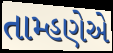
તામ્હણેએ